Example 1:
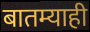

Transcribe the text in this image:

बातम्याही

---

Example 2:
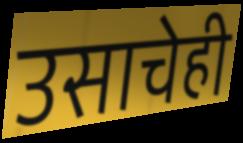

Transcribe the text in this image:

उसाचेही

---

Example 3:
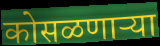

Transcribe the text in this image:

कोसळणाऱ्या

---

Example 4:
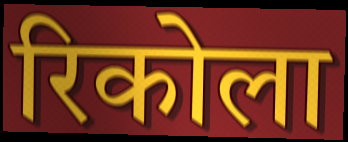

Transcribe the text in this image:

रिकोला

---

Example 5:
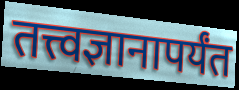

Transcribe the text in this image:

तत्त्वज्ञानापर्यंत